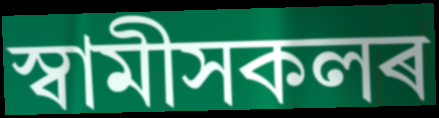
স্বামীসকলৰ